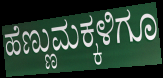
ಹೆಣ್ಣುಮಕ್ಕಳಿಗೂ